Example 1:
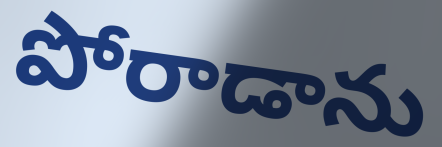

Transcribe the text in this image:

పోరాడాను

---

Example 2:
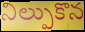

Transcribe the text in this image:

నిల్పుకొన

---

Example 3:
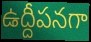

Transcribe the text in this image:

ఉద్దీపనగా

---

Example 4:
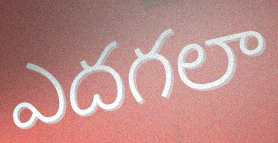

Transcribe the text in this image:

ఎదగలా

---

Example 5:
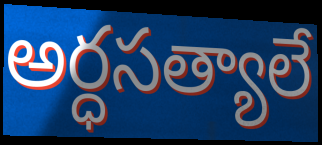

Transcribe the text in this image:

అర్ధసత్యాలే